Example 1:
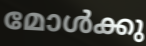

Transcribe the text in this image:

മോൾക്കു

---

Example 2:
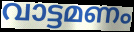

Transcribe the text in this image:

വാട്ടമണം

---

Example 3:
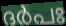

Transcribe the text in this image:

ദർപഃ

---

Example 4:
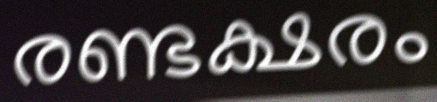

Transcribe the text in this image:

രണ്ടക്ഷരം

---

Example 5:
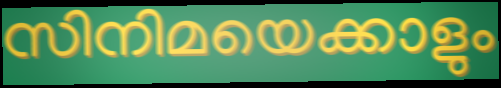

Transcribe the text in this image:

സിനിമയെക്കാളും